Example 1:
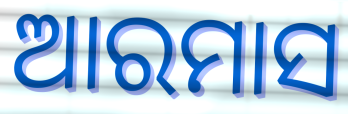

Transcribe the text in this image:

ଆରମାସ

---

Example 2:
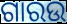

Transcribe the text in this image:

ଗାରଉ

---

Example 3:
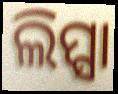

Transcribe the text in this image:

ଲିପ୍ସା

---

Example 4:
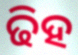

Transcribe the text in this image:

ଢିହ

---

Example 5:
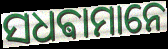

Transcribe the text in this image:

ସଧଵାମାନେ